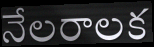
నేలరాలక